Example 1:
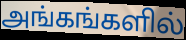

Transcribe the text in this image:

அங்கங்களில்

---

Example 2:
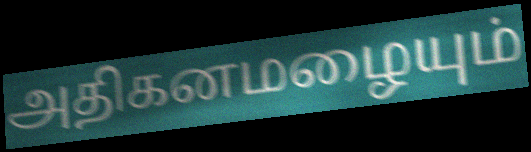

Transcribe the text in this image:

அதிகனமழையும்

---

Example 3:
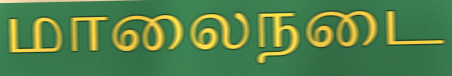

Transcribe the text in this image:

மாலைநடை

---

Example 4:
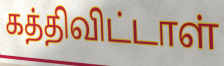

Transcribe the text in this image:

கத்திவிட்டாள்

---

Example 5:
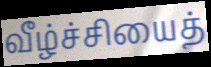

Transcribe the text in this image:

வீழ்ச்சியைத்